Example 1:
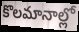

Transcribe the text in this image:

కొలమానాల్లో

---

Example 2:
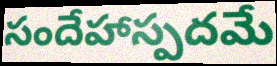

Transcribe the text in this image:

సందేహాస్పదమే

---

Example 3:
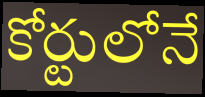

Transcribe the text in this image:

కోర్టులోనే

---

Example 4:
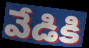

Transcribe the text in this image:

వేడికి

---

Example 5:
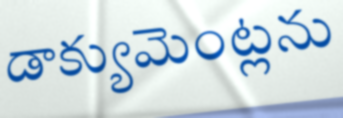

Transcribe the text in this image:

డాక్యుమెంట్లను